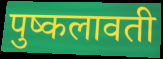
पुष्कलावती